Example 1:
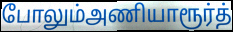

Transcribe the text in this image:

போலும்அணியாரூர்த்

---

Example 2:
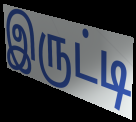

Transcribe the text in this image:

இருட்டி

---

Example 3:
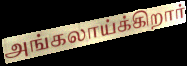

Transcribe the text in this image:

அங்கலாய்க்கிறார்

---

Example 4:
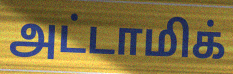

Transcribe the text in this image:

அட்டாமிக்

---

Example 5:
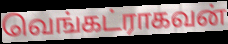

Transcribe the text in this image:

வெங்கட்ராகவன்